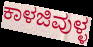
ಕಾಳಜಿವುಳ್ಳ